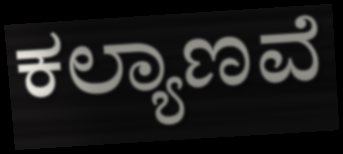
ಕಲ್ಯಾಣವೆ